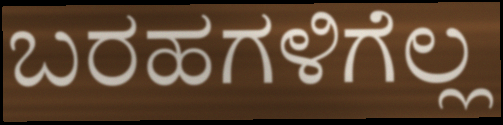
ಬರಹಗಳಿಗೆಲ್ಲ